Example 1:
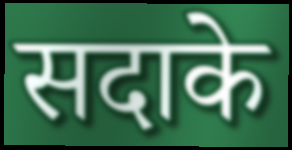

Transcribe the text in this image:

सदाके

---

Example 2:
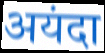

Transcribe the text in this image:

अयंदा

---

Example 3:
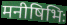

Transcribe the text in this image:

मनीषिभिः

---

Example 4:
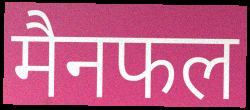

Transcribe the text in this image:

मैनफल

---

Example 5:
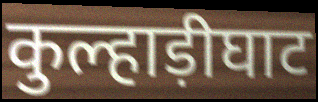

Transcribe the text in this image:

कुल्हाड़ीघाट